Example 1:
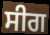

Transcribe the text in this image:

ਸੀਗ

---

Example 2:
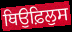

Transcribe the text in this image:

ਥਿਉਫ਼ਿਲੁਸ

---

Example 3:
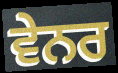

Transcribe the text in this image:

ਵੇਨਰ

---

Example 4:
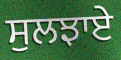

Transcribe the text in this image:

ਸੁਲਝਾਏ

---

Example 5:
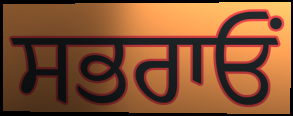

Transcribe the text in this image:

ਸਭਰਾਓਂ